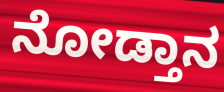
ನೋಡ್ತಾನ